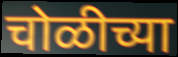
चोळीच्या